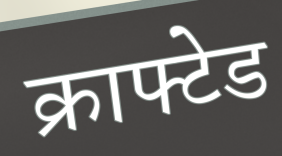
क्राफ्टेड